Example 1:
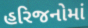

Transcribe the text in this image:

હરિજનોમાં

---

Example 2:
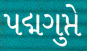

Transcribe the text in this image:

પદ્મગુપ્તે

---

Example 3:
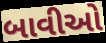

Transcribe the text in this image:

બાવીઓ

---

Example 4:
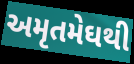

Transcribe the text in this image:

અમૃતમેઘથી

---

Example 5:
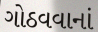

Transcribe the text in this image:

ગોઠવવાનાં